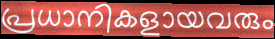
പ്രധാനികളായവരും